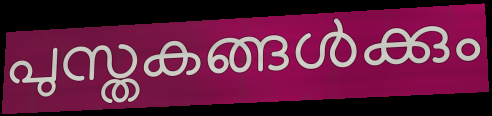
പുസ്തകങ്ങൾക്കും